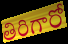
తిరిగారో